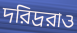
দরিদ্ররাও